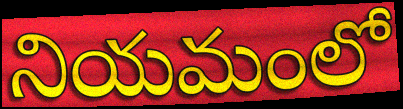
నియమంలో